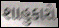
શાહુકારો